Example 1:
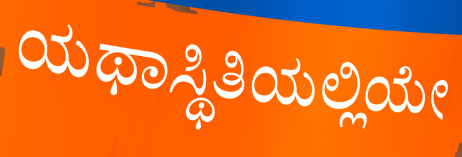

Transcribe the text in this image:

ಯಥಾಸ್ಥಿತಿಯಲ್ಲಿಯೇ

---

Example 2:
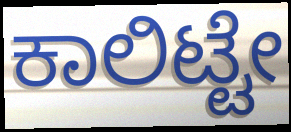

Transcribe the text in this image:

ಕಾಲಿಟ್ಟೇ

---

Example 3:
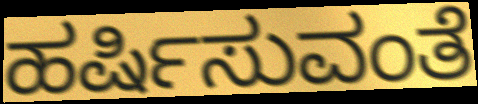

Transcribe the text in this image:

ಹರ್ಷಿಸುವಂತೆ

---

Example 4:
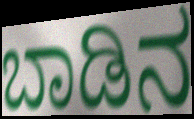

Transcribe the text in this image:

ಬಾಡಿನ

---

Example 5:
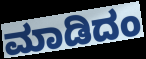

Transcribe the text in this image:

ಮಾಡಿದಂ